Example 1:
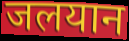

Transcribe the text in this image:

जलयान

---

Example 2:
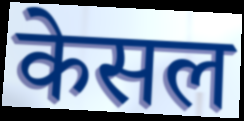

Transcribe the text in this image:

केसल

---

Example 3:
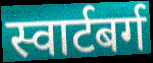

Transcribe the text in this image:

स्वार्टबर्ग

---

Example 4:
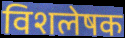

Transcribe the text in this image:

विशलेषक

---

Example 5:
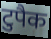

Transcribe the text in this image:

टुपैक